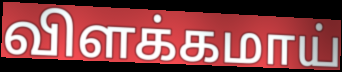
விளக்கமாய்